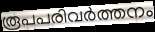
രൂപപരിവർത്തനം